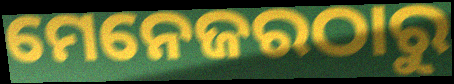
ମେନେଜରଠାରୁ